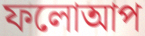
ফলোআপ